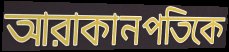
আরাকানপতিকে